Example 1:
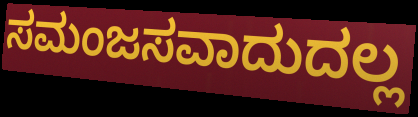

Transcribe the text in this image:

ಸಮಂಜಸವಾದುದಲ್ಲ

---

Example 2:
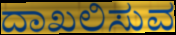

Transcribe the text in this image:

ದಾಖಲಿಸುವ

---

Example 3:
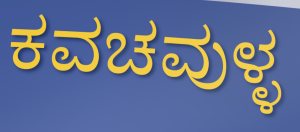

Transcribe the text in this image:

ಕವಚವುಳ್ಳ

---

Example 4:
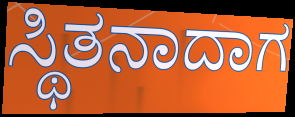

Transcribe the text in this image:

ಸ್ಥಿತನಾದಾಗ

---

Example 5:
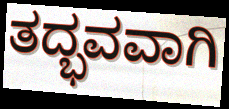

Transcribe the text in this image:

ತದ್ಭವವಾಗಿ